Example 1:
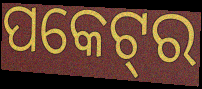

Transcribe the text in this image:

ପକେଟ୍‌ର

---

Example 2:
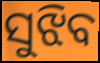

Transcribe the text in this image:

ସୁଝିବ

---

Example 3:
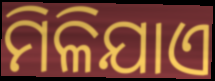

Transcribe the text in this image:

ମିଳିଯାଏ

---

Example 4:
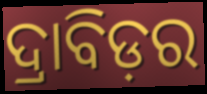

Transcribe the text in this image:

ଦ୍ରାବିଡ଼ର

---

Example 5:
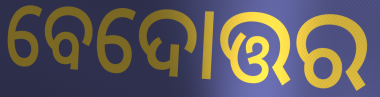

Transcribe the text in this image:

ବେଦୋତ୍ତର